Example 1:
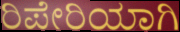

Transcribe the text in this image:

ರಿಪೇರಿಯಾಗಿ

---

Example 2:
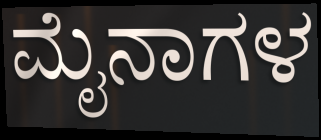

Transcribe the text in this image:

ಮೈನಾಗಳ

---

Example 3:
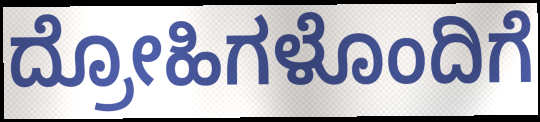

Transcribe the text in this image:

ದ್ರೋಹಿಗಳೊಂದಿಗೆ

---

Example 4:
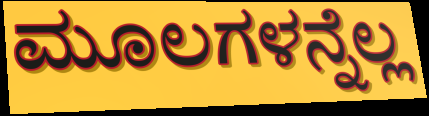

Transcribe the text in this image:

ಮೂಲಗಳನ್ನೆಲ್ಲ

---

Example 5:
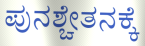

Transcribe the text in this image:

ಪುನಶ್ಚೇತನಕ್ಕೆ